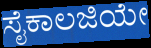
ಸೈಕಾಲಜಿಯೇ